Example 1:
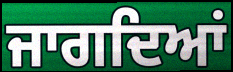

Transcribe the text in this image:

ਜਾਗਦਿਆਂ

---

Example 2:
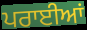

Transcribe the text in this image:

ਪਰਾਈਆਂ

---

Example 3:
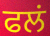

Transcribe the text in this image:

ਫਲਂ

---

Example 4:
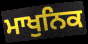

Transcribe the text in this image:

ਮਾਖੁਨਿਕ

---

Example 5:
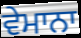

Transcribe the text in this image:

ਵੇਮਾਨਾ